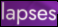
lapses